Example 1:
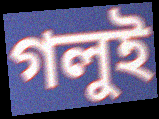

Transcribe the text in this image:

গলুই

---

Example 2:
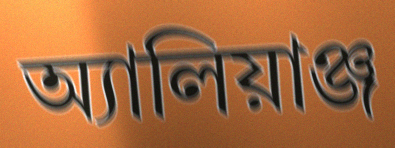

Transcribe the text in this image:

অ্যালিয়াঞ্জ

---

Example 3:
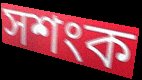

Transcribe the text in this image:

সশংক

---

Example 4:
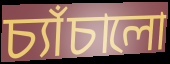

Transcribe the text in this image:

চ্যাঁচালো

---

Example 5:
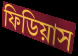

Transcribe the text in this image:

ফিডিয়াস